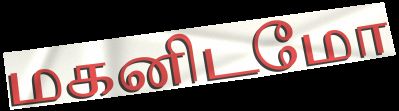
மகனிடமோ